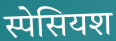
स्पेसियश